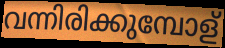
വന്നിരിക്കുമ്പോള്